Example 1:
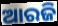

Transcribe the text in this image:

ଆରଜି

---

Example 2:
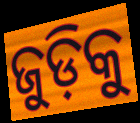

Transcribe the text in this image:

ଜୁଡ଼ିକୁ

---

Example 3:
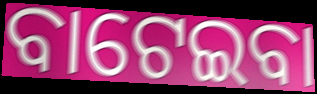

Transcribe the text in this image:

ବାଟେଇବା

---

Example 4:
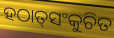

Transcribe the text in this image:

ହଠାତ୍‌ସଂକୁଚିତ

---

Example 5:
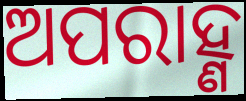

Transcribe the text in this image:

ଅପରାହ୍ଣ